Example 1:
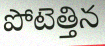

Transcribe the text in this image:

పోటెత్తిన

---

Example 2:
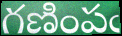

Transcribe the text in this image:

గణింపఁ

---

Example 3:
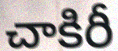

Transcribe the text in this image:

చాకిరీ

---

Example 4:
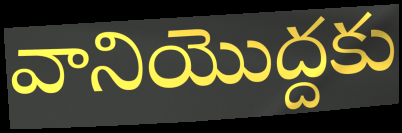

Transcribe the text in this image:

వానియొద్దకు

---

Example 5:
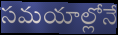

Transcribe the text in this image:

సమయాల్లోనే